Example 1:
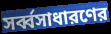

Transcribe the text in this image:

সর্ব্বসাধারণের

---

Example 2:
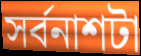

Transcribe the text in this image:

সর্বনাশটা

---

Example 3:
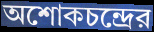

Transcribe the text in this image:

অশোকচন্দ্রের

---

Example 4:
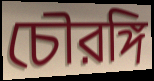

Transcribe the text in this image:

চৌরঙ্গি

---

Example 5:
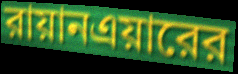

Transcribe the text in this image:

রায়ানএয়ারের